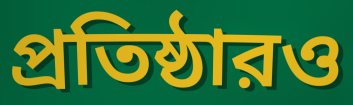
প্রতিষ্ঠারও